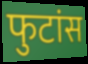
फुटांस